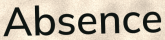
Absence